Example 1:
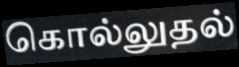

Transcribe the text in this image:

கொல்லுதல்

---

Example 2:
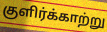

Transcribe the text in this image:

குளிர்க்காற்று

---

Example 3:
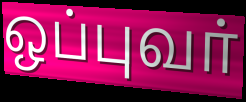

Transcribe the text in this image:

ஒப்புவர்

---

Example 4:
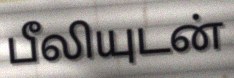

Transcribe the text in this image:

பீலியுடன்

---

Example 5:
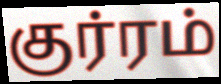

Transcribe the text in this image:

குர்ரம்